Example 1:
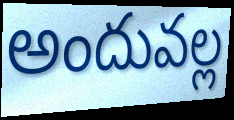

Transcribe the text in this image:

అందువల్ల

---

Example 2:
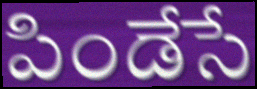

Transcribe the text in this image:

పిండేసే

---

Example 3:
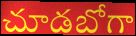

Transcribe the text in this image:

చూడబోగా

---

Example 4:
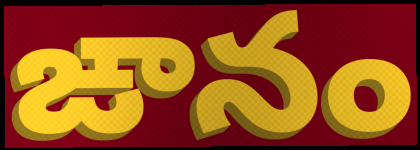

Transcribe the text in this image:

ఙానం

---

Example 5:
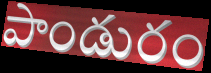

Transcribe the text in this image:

పాండురం